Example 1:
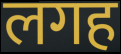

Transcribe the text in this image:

लगह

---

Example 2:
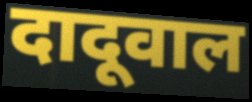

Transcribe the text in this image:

दादूवाल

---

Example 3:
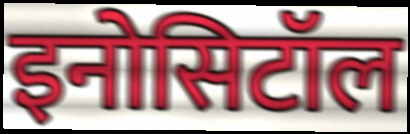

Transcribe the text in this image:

इनोसिटॉल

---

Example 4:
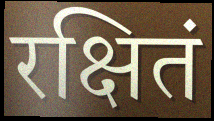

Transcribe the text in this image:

रक्षितं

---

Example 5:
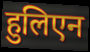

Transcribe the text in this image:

हुलिएन